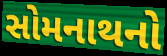
સોમનાથનો